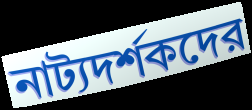
নাট্যদর্শকদের